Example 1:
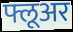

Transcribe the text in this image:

फ्लूअर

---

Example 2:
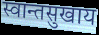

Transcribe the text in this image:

स्वान्तसुखाय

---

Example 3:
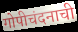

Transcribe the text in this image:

गोपीचंदनाची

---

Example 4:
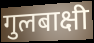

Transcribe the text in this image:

गुलबाक्षी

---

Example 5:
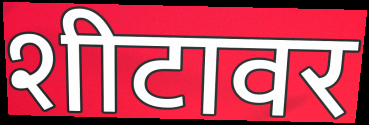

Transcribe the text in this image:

शीटावर